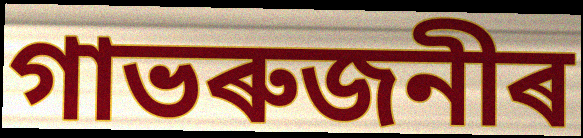
গাভৰুজনীৰ